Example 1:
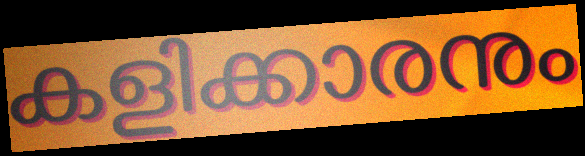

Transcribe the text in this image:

കളിക്കാരനും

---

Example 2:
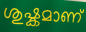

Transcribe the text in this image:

ശുഷ്കമാണ്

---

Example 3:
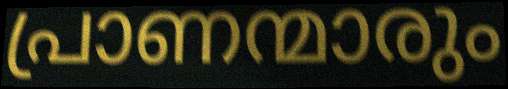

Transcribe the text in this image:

പ്രാണന്മാരും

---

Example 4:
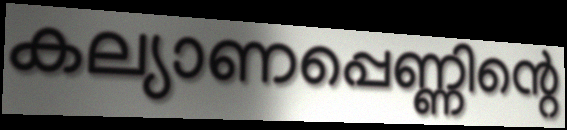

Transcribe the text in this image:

കല്യാണപ്പെണ്ണിന്റെ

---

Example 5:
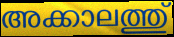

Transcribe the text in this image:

അക്കാലത്തു്